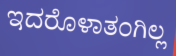
ಇದರೊಳಾತಂಗಿಲ್ಲ